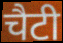
चैटी